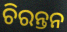
ଚିରନ୍ତନ